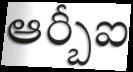
ఆర్బీఐ